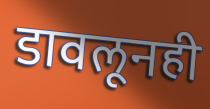
डावलूनही